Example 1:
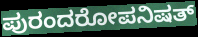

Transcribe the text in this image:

ಪುರಂದರೋಪನಿಷತ್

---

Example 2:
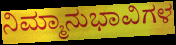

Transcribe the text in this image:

ನಿಮ್ಮಾನುಭಾವಿಗಳ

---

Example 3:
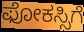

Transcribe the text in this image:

ಫೋಕಸ್ಸಿಗೆ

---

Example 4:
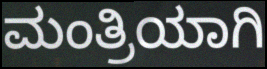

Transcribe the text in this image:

ಮಂತ್ರಿಯಾಗಿ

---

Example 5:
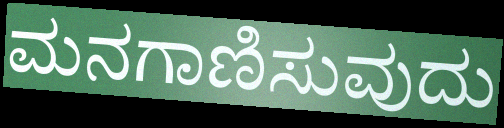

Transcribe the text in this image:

ಮನಗಾಣಿಸುವುದು